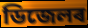
ডিজেলৰ